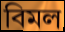
বিমল